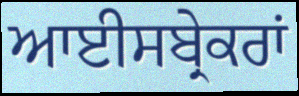
ਆਈਸਬ੍ਰੇਕਰਾਂ